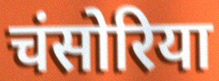
चंसोरिया